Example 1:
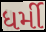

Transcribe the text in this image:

ધર્મી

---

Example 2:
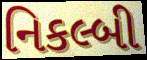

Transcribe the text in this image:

નિકલ્બી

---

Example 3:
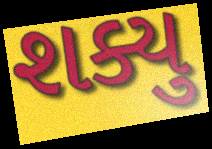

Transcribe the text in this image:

શક્યુ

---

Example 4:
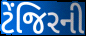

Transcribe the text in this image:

ટેંજિરની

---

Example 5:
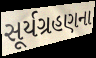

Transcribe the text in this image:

સૂર્યગ્રહણના